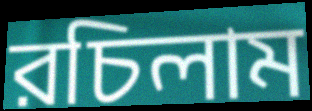
রচিলাম